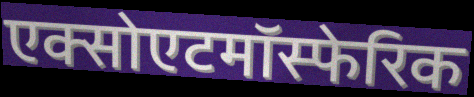
एक्सोएटमॉस्फेरिक